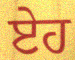
ਏਹ